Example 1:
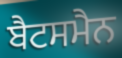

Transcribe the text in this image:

ਬੈਟਸਮੈਨ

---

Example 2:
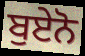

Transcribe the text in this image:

ਬੁਏਨੋ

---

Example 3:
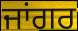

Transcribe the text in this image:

ਜਾਂਗਰ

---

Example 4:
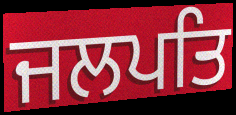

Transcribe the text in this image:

ਜਲਪਤਿ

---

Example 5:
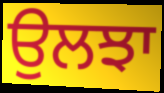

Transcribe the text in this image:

ਉਲਝਾ